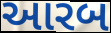
આરબ